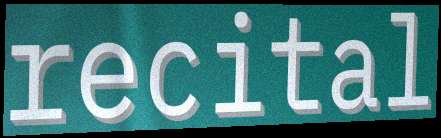
recital